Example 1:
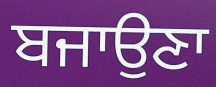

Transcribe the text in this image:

ਬਜਾਉਣਾ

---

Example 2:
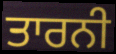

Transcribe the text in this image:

ਤਾਰਨੀ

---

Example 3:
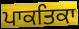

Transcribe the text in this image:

ਪਾਕਤਿਕਾ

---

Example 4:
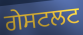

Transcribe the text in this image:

ਗੇਸਟਲਟ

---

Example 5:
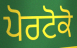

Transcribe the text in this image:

ਪੋਰਟੋਕੋ